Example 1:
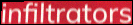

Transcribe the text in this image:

infiltrators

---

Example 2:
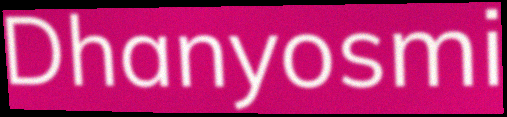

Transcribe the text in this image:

Dhanyosmi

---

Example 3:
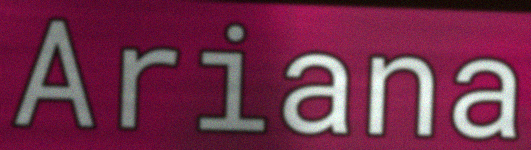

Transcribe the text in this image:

Ariana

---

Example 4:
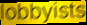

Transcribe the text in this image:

lobbyists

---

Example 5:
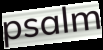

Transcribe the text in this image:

psalm